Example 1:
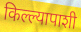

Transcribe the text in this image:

किल्ल्यापाशी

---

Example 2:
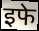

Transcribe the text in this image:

इफे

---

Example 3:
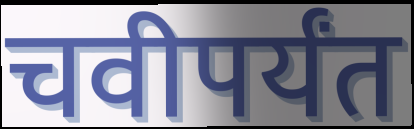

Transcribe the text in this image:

चवीपर्यंत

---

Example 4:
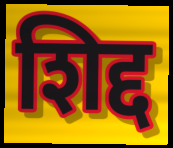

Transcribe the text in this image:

शिद्द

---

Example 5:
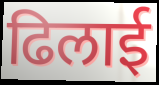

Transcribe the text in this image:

ढिलाई